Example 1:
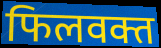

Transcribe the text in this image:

फिलवक्‍त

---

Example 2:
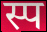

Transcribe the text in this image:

स्प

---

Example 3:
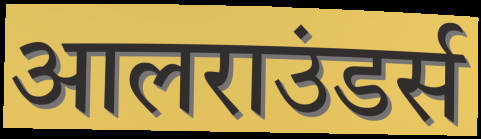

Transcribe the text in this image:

आलराउंडर्स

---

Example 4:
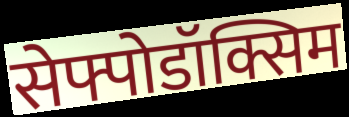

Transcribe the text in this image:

सेफ्पोडॉक्सिम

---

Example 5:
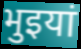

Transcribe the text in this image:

भुइयां